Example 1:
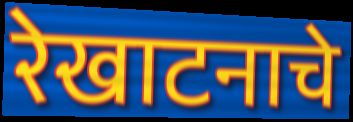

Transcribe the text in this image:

रेखाटनाचे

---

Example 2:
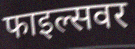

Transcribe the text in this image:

फाइल्सवर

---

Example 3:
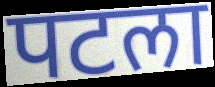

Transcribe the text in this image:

पटला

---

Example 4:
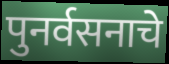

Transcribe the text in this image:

पुनर्वसनाचे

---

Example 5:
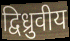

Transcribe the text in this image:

द्विध्रुवीय